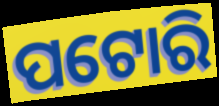
ପଟୋରି